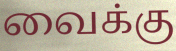
வைக்கு